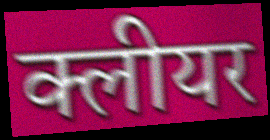
क्लीयर